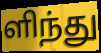
ளிந்து